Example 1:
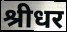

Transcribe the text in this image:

श्रीधर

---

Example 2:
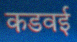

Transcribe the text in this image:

कडवई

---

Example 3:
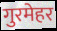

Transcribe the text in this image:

गुरमेहर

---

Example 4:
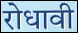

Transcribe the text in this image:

रोधावी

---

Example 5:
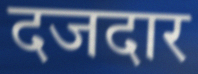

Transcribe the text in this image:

दजदार